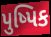
પુષ્પિક